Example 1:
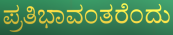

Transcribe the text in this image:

ಪ್ರತಿಭಾವಂತರೆಂದು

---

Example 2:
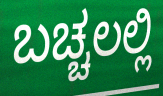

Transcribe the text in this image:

ಬಚ್ಚಲಲ್ಲಿ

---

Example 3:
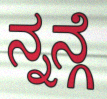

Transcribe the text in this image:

ನ್ನನ್ಗೆ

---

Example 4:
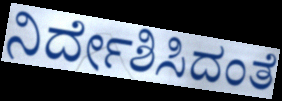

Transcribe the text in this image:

ನಿರ್ದೇಶಿಸಿದಂತೆ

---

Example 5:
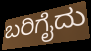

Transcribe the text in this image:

ಬರಿಗೈದು